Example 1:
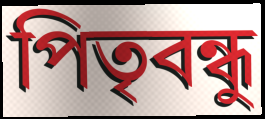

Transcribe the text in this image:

পিতৃবন্ধু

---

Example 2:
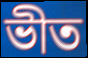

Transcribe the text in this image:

ভীত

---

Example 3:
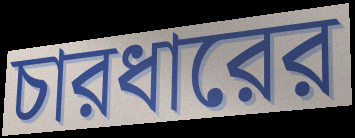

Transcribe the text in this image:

চারধারের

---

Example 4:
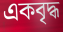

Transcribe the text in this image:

একবৃদ্ধ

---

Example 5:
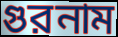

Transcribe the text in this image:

গুরনাম